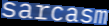
sarcasm